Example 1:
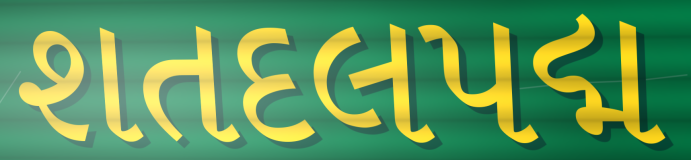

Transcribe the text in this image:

શતદલપદ્મ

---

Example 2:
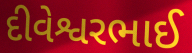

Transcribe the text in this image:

દીવેશ્વરભાઈ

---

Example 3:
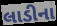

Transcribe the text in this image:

લાડીના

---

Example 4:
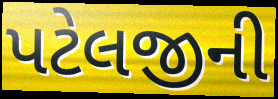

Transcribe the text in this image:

પટેલજીની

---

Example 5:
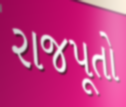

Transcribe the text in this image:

રાજપૂતો